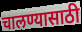
चालण्यासाठी